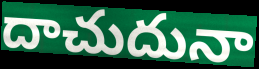
దాచుదునా